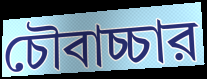
চৌবাচ্চার